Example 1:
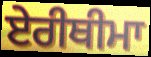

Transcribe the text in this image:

ਏਰੀਥੀਮਾ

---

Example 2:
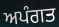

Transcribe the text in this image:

ਅਪੰਗਤ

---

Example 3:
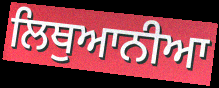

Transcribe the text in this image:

ਲਿਥੁਆਨੀਆ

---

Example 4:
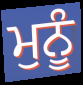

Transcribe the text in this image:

ਮੁਨੂੰ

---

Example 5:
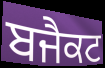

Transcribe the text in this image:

ਬਜੈਕਟ